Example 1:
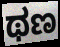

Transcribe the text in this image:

ಥಣ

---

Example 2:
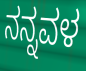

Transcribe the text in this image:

ನನ್ನವಳ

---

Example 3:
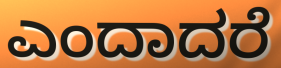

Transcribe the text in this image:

ಎಂದಾದರೆ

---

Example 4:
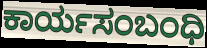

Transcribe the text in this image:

ಕಾರ್ಯಸಂಬಂಧಿ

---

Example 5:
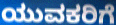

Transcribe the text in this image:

ಯುವಕರಿಗೆ